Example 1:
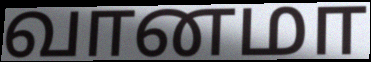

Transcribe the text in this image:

வானமா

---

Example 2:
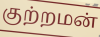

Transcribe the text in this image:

குற்றமன்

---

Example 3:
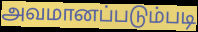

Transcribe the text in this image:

அவமானப்படும்படி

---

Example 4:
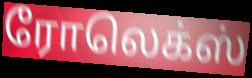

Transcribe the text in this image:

ரோலெக்ஸ்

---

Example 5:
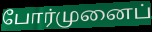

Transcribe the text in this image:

போர்முனைப்